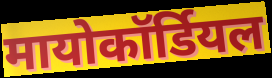
मायोकॉर्डियल